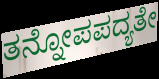
ತನ್ನೋಪಪದ್ಯತೇ